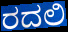
ರದಲಿ